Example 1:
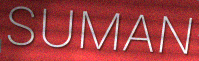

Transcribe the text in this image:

SUMAN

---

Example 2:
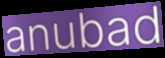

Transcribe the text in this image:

anubad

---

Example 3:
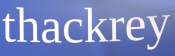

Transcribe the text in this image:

thackrey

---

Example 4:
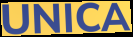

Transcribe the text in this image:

UNICA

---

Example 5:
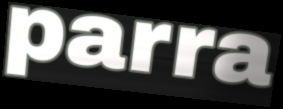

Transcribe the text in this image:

parra